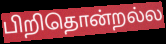
பிறிதொன்றல்ல